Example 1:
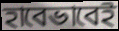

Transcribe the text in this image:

হাবেভাবেই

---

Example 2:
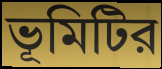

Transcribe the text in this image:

ভূমিটির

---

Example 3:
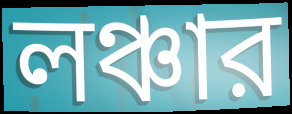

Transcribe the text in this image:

লঞ্চার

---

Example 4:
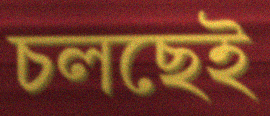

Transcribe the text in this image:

চলছেই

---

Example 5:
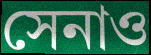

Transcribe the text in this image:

সেনাও